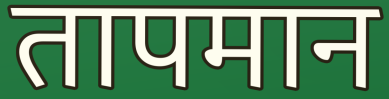
तापमान